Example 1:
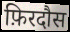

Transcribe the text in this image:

फ़िरदौस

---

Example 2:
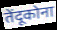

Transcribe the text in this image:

तेंदूकोना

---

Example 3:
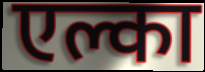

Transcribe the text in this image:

एल्का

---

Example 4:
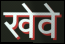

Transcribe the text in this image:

खेवे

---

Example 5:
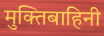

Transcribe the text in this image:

मुक्तिबाहिनी